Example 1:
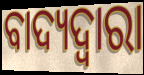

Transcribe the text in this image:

ବାଦ୍ୟଦ୍ୱାରା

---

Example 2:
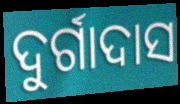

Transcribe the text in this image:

ଦୁର୍ଗାଦାସ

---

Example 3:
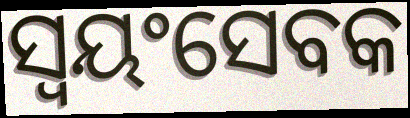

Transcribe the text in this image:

ସ୍ୱୟଂସେବକ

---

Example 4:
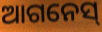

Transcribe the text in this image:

ଆଗନେସ୍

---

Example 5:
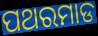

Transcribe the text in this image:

ପଥରମାଡ